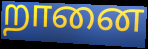
றானை